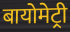
बायोमेट्री